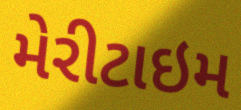
મેરીટાઇમ